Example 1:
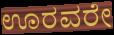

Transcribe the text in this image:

ಊರವರೇ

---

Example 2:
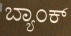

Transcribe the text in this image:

ಬ್ಯಾಂಕ್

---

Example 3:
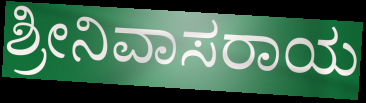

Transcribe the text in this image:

ಶ್ರೀನಿವಾಸರಾಯ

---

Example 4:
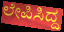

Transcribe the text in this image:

ಲೇಪಿಸಿದ್ದ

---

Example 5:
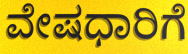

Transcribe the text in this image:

ವೇಷಧಾರಿಗೆ